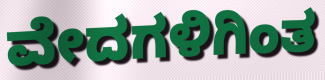
ವೇದಗಳಿಗಿಂತ